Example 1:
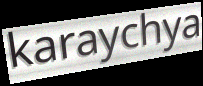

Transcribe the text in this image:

karaychya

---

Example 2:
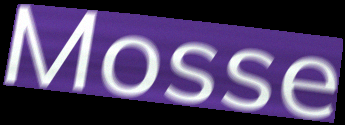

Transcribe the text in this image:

Mosse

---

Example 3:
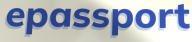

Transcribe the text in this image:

epassport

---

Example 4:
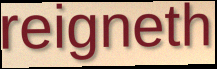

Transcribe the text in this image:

reigneth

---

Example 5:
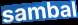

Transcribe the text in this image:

sambal